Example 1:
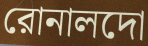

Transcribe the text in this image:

রোনালদো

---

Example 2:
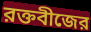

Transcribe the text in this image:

রক্তবীজের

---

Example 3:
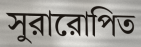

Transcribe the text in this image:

সুরারোপিত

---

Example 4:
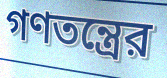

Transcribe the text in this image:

গণতন্ত্রের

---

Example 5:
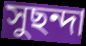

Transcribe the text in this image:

সুছন্দা